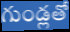
గుండ్లతో